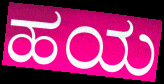
ಹಯ